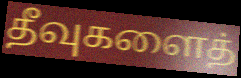
தீவுகளைத்